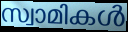
സ്വാമികൾ